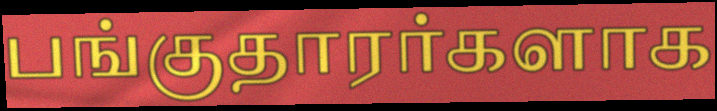
பங்குதாரர்களாக